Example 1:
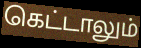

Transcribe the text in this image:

கெட்டாலும்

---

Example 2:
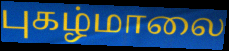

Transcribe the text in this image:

புகழ்மாலை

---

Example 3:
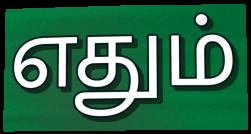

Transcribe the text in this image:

எதும்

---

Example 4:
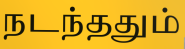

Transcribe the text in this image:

நடந்ததும்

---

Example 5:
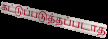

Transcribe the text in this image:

கட்டுப்படுத்தப்படாத